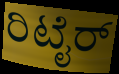
ರಿಟೈರ್